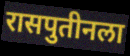
रासपुतीनला